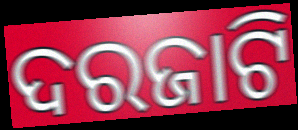
ଦରଜାଟି